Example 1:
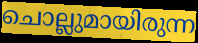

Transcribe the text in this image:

ചൊല്ലുമായിരുന്ന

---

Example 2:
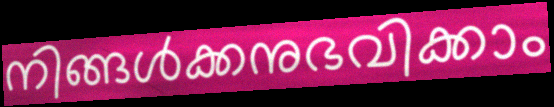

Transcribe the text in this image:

നിങ്ങൾക്കനുഭവിക്കാം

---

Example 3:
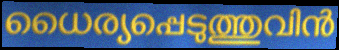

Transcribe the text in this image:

ധൈര്യപ്പെടുത്തുവിൻ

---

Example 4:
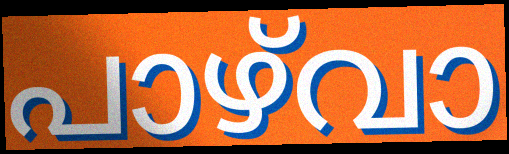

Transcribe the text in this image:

പാഴ്‌വാ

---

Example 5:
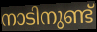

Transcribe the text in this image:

നാടിനുണ്ട്